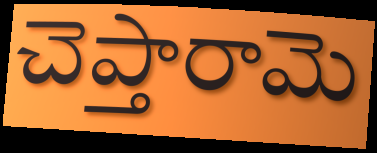
చెప్తారామె